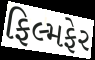
ફિલ્મફેર